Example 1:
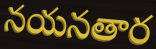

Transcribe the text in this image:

నయనతార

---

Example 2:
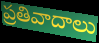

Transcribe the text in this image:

ప్రతివాదాలు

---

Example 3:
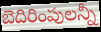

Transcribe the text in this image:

బెదిరింపులన్నీ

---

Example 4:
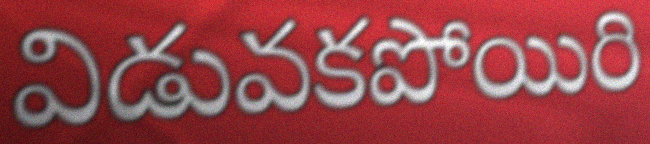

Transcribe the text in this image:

విడువకపోయిరి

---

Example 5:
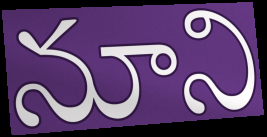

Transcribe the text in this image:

నూని